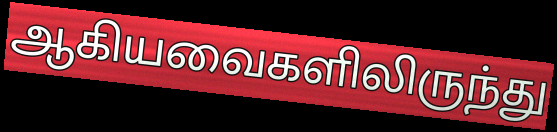
ஆகியவைகளிலிருந்து